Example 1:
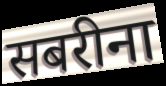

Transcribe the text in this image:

सबरीना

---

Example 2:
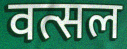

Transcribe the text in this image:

वत्सल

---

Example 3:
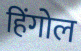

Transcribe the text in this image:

हिंगोल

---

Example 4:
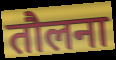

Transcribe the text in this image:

तौलना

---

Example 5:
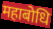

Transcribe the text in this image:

महाबोधि